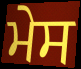
ਮੇਸ